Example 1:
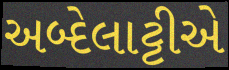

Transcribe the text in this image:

અબ્દેલાટ્ટીએ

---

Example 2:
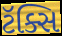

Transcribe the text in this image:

ટૅક્સિ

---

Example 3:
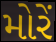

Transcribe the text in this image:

મોરેં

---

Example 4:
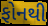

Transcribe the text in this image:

ફોનથી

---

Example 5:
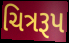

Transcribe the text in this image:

ચિત્રરૂપ